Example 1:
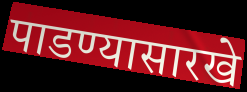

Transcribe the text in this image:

पाडण्यासारखे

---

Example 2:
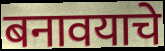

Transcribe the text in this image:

बनावयाचे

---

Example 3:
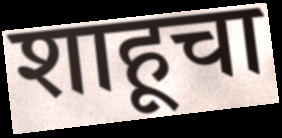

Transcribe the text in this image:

शाहूचा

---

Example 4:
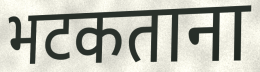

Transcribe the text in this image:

भटकताना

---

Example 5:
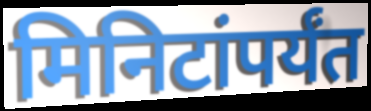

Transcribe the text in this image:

मिनिटांपर्यंत